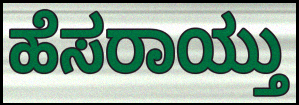
ಹೆಸರಾಯ್ತು